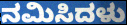
ನಮಿಸಿದಳು